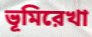
ভূমিরেখা